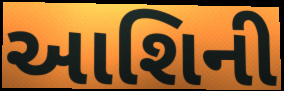
આશિની